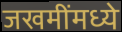
जखमींमध्ये